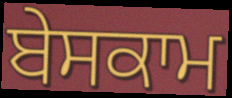
ਬੇਸਕਾਮ